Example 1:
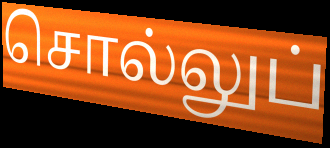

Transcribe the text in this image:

சொல்லுப்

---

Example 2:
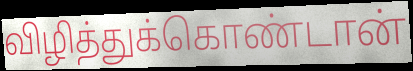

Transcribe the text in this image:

விழித்துக்கொண்டான்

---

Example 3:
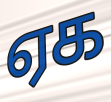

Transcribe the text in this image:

ஏக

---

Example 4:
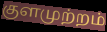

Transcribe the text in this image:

குளமுற்றம்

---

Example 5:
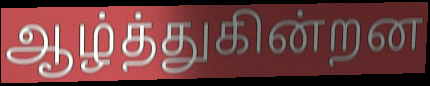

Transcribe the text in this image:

ஆழ்த்துகின்றன